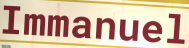
Immanuel